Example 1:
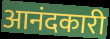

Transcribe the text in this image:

आनंदकारी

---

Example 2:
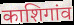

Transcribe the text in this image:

काशिगांव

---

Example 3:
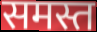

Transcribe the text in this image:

समस्त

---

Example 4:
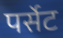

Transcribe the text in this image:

पर्सेट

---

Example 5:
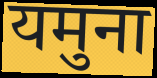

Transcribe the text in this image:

यमुना